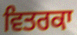
ਵਿਤਰਕਾ